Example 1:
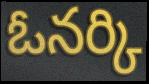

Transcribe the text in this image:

ఓనర్కి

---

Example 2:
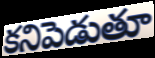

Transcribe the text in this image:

కనిపెడుతూ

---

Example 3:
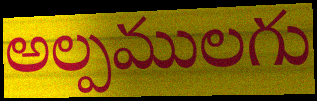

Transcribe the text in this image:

అల్పములగు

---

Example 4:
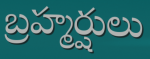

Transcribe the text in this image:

బ్రహ్మర్షులు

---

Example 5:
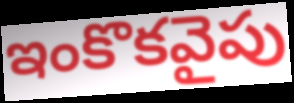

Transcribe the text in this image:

ఇంకొకవైపు